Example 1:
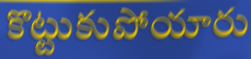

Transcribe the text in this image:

కొట్టుకుపోయారు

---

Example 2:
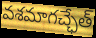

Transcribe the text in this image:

వశమాగచ్ఛేత్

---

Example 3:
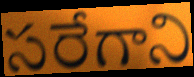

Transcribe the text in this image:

సరేగాని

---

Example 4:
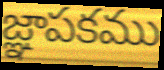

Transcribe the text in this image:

జ్ఞాపకము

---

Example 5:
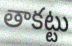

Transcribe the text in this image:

తాకట్టు